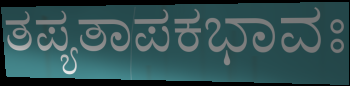
ತಪ್ಯತಾಪಕಭಾವಃ